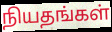
நியதங்கள்